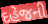
દહેજની